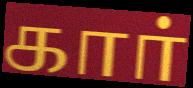
கார்